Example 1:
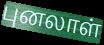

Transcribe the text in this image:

புனலாள்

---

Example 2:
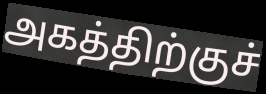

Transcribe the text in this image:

அகத்திற்குச்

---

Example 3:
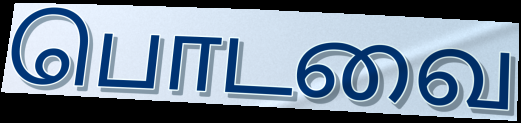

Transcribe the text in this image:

பொடவை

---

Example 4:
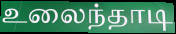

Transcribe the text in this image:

உலைந்தாடி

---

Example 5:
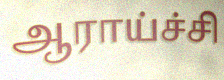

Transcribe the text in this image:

ஆராய்ச்சி